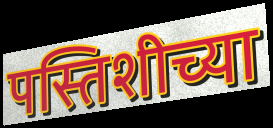
पस्तिशीच्या